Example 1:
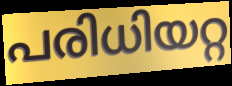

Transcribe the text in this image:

പരിധിയറ്റ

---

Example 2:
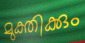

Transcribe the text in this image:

മുക്തിക്കും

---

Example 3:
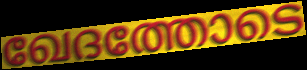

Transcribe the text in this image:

ഖേദത്തോടെ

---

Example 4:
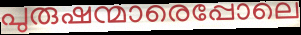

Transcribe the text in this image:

പുരുഷന്മാരെപ്പോലെ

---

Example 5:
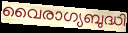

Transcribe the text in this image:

വൈരാഗ്യബുദ്ധി